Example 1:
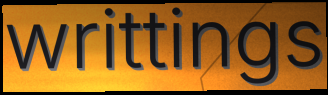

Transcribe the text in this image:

writtings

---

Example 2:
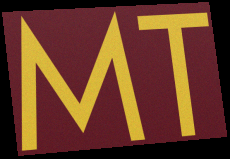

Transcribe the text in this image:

MT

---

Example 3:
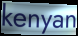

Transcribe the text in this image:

kenyan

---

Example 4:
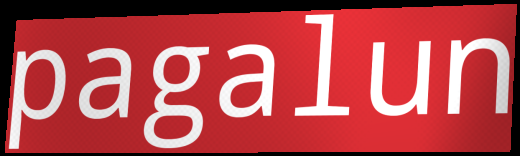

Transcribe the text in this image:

pagalun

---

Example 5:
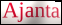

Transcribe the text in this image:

Ajanta